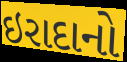
ઇરાદાનો